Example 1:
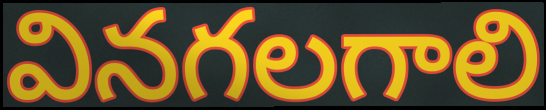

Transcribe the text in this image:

వినగలగాలి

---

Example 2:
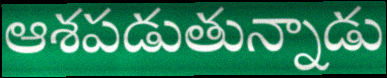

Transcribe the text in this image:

ఆశపడుతున్నాడు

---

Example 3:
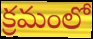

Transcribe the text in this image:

క్రమంలో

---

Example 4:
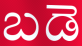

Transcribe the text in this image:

బడె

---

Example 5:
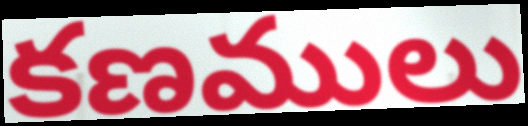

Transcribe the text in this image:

కణములు